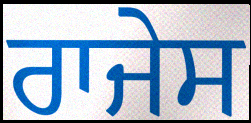
ਰਾਜੇਸ